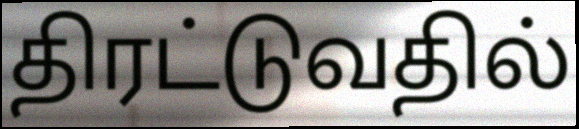
திரட்டுவதில்